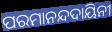
ପରମାନନ୍ଦଦାୟିନୀ